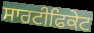
ਸਾਰਟੀਫਿਕੇਟ